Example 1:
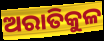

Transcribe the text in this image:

ଅରାତିକୁଳ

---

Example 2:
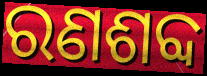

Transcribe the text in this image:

ରଣଶବ୍ଦ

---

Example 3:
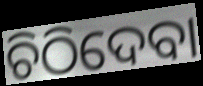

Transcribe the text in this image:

ଚିଠିଦେବା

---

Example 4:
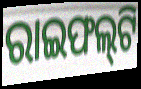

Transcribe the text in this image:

ରାଇଫଲ୍‌ଟି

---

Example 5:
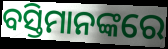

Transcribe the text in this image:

ବସ୍ତିମାନଙ୍କରେ